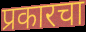
प्रकारचा